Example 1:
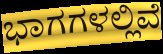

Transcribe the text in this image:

ಭಾಗಗಳಲ್ಲಿವೆ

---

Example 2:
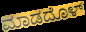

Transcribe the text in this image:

ಮಾಡದೊಳ್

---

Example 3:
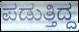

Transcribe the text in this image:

ಪಡುತ್ತಿದ್ದ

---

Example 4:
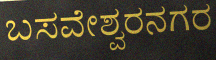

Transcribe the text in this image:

ಬಸವೇಶ್ವರನಗರ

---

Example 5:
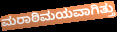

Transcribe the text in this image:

ಮರಾಠಿಮಯವಾಗಿತ್ತು